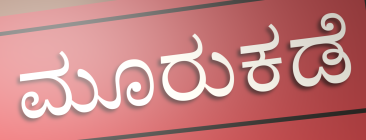
ಮೂರುಕಡೆ